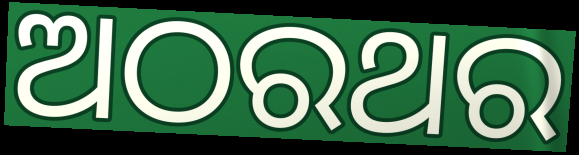
ଅଠରଥର